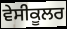
ਵੇਸੀਕੂਲਰ